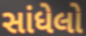
સાંધેલો